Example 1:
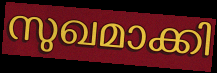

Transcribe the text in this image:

സുഖമാക്കി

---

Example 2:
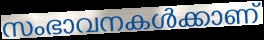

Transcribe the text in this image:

സംഭാവനകൾക്കാണ്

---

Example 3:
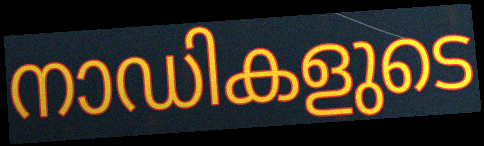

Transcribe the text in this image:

നാഡികളുടെ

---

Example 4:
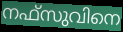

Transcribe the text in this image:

നഫ്സുവിനെ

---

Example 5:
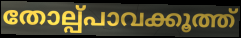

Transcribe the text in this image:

തോല്പ്പാവക്കൂത്ത്